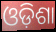
ଓଡ଼ିଶା